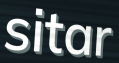
sitar